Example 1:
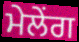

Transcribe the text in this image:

ਮੇਲੇਂਗ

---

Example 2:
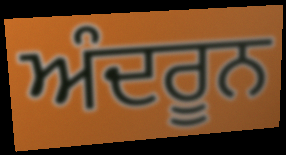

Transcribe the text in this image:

ਅੰਦਰੂਨ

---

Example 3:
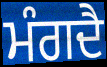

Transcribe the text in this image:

ਮੰਗਦੈ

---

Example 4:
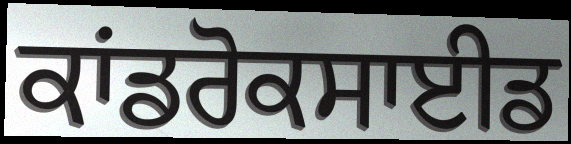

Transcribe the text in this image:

ਕਾਂਡਰੋਕਸਾਈਡ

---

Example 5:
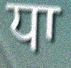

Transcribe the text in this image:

ਧਾ